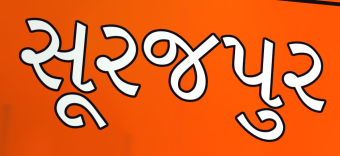
સૂરજપુર